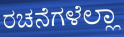
ರಚನೆಗಳೆಲ್ಲಾ